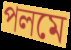
পলমে